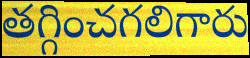
తగ్గించగలిగారు